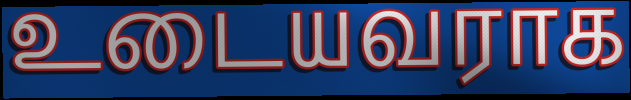
உடையவராக